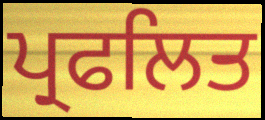
ਪ੍ਰਫਲਿਤ